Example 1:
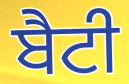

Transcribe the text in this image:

ਬੈਟੀ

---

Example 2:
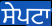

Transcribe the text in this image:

ਸੇਪਟਾ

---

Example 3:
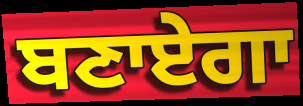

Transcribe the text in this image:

ਬਣਾਏਗਾ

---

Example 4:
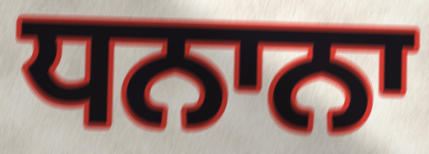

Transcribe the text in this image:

ਧਨਾਨਾ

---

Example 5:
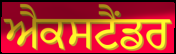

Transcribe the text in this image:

ਐਕਸਟੈਂਡਰ